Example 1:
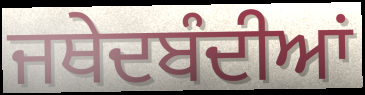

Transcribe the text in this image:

ਜਥੇਦਬੰਦੀਆਂ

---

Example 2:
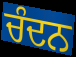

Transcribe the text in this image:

ਚੰਦਨ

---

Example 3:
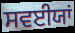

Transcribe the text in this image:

ਸਵਈਯਾਂ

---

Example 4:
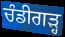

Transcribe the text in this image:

ਚੰਡੀਗਡ਼੍ਹ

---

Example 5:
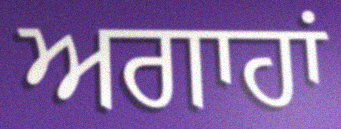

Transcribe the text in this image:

ਅਗਾਹਾਂ